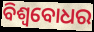
ବିଶ୍ବବୋଧର